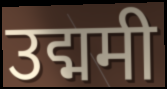
उद्ममी